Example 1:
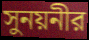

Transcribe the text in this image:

সুনয়নীর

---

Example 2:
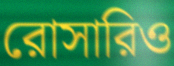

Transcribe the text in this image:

রোসারিও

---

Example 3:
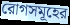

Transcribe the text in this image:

রোগসমূহের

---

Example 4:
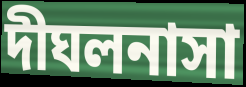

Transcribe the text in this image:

দীঘলনাসা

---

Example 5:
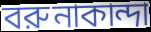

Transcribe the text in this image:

বরুনাকান্দা